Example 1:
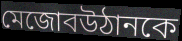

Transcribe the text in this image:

মেজোবউঠানকে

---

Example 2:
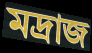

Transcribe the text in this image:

মদ্রাজ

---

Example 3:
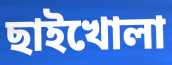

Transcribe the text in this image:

ছাইখোলা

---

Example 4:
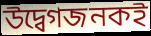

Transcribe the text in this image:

উদ্বেগজনকই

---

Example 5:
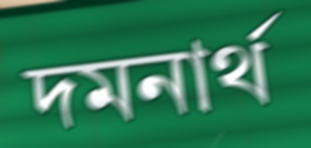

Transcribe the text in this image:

দমনার্থ